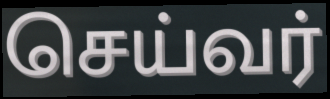
செய்வர்